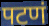
पटणं